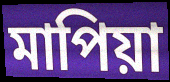
মাপিয়া